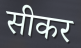
सीकर